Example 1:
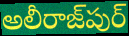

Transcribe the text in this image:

అలీరాజ్‌పుర్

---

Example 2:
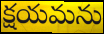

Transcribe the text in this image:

క్షయమను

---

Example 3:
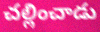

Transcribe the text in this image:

చల్లించాడు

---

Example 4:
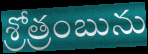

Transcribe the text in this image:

శ్రోత్రంబును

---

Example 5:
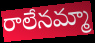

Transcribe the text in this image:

రాలేనమ్మా